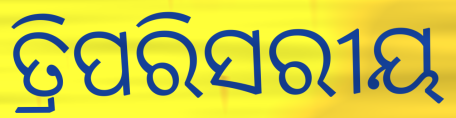
ତ୍ରିପରିସରୀୟ